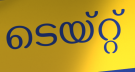
ടെയ്റ്റ്